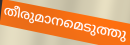
തീരുമാനമെടുത്തു